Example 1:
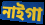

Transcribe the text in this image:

নাইগা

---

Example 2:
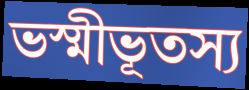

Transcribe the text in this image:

ভস্মীভূতস্য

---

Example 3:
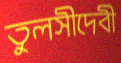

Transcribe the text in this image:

তুলসীদেবী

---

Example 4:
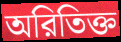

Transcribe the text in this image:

অরিতিক্ত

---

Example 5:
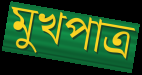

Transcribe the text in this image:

মুখপাত্র